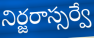
నిర్జరాస్సర్వే